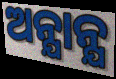
ଅନ୍ଯାନ୍ଯ